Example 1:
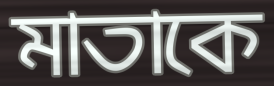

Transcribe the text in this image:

মাতাকে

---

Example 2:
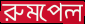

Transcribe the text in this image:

রুমপেল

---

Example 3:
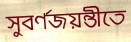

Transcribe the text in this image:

সুবর্ণজয়ন্তীতে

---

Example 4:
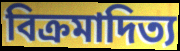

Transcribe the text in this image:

বিক্রমাদিত্য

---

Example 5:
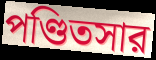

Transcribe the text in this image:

পণ্ডিতসার